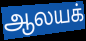
ஆலயக்